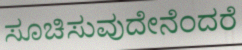
ಸೂಚಿಸುವುದೇನೆಂದರೆ